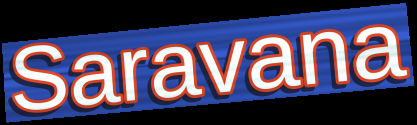
Saravana